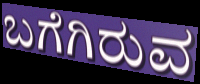
ಬಗೆಗಿರುವ